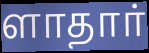
ளாதார்